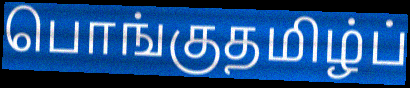
பொங்குதமிழ்ப்